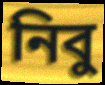
নিবু